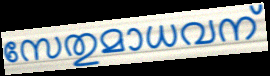
സേതുമാധവന്